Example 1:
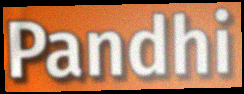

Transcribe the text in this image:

Pandhi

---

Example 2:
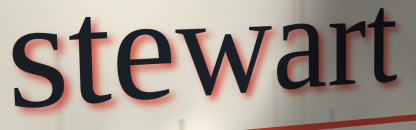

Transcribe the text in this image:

stewart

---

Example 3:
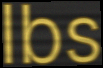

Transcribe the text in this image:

lbs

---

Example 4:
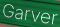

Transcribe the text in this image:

Garver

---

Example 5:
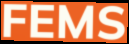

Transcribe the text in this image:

FEMS